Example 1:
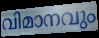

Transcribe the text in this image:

വിമാനവും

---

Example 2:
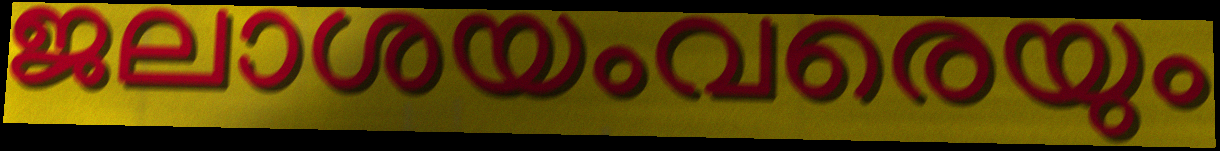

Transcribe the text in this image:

ജലാശയംവരെയും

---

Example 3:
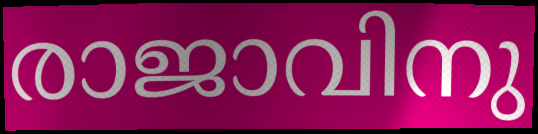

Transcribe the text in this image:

രാജാവിനു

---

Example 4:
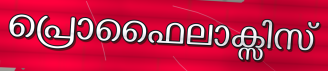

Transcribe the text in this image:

പ്രൊഫൈലാക്സിസ്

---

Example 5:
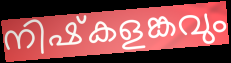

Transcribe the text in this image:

നിഷ്‌കളങ്കവും